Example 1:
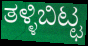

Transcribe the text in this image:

ತಳ್ಳಿಬಿಟ್ಟ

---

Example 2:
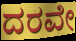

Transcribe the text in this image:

ದರವೇ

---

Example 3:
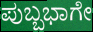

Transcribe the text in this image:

ಪುಬ್ಬಭಾಗೇ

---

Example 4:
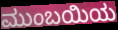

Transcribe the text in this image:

ಮುಂಬಯಿಯ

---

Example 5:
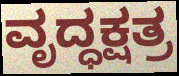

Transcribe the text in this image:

ವೃದ್ಧಕ್ಷತ್ರ